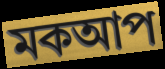
মকআপ